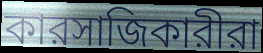
কারসাজিকারীরা